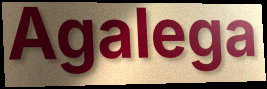
Agalega